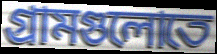
গ্রামগুলোতে